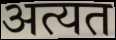
अत्यत